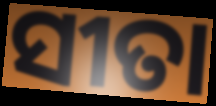
ସୀତା